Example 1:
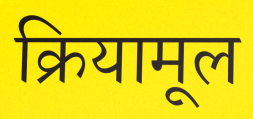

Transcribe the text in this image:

क्रियामूल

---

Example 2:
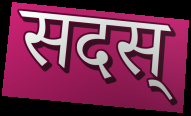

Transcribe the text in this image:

सदस्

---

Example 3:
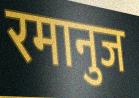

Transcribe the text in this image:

रमानुज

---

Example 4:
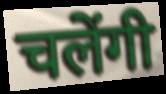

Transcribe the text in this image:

चलेंगी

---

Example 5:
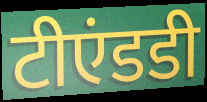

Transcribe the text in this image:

टीएंडडी